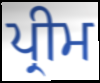
ਪ੍ਰੀਮ